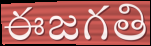
ఈజగతి